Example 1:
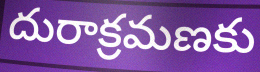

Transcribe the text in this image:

దురాక్రమణకు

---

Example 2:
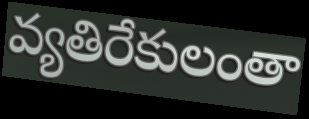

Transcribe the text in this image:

వ్యతిరేకులంతా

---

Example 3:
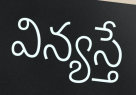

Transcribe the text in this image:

విన్యస్తే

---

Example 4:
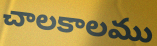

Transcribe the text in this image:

చాలకాలము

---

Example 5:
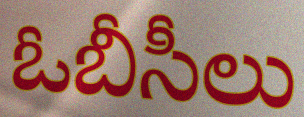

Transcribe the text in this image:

ఓబీసీలు